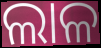
ଲାଳ